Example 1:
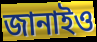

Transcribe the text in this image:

জানাইও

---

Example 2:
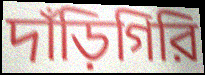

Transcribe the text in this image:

দাঁড়িগিরি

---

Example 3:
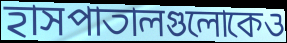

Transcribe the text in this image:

হাসপাতালগুলোকেও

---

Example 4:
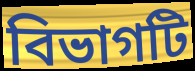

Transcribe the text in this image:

বিভাগটি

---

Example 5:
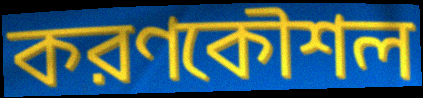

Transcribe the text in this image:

করণকৌশল